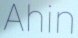
Ahin